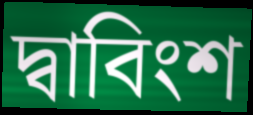
দ্বাবিংশ